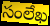
సంలేఖ